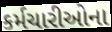
કર્મચારીઓના